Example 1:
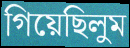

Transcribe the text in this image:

গিয়েছিলুম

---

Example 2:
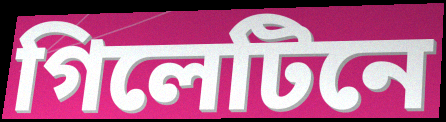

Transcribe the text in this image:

গিলেটিনে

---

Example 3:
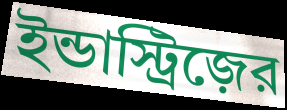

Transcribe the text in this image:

ইন্ডাস্ট্রিজ়ের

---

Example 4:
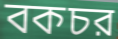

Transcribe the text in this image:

বকচর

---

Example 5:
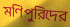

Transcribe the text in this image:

মণিপুরিদের